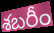
శబరీం